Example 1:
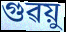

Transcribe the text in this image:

গুৱয়ু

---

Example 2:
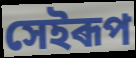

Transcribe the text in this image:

সেইৰূপ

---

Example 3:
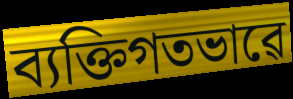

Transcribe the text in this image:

ব্যক্তিগতভাৱে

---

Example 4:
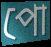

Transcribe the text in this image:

পো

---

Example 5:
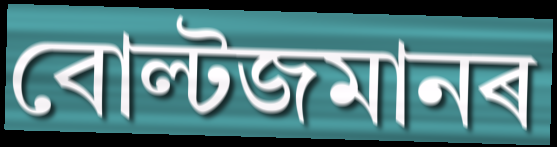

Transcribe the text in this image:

বোল্টজমানৰ